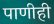
पाणीही